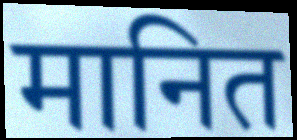
मानित